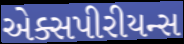
એક્સપીરીયન્સ